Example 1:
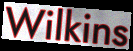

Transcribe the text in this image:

Wilkins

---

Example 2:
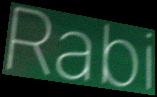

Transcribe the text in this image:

Rabi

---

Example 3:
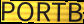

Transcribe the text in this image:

PORTB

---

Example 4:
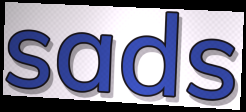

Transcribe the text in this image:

sads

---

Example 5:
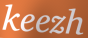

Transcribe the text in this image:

keezh